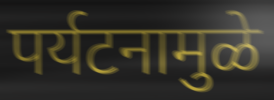
पर्यटनामुळे